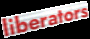
liberators